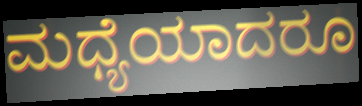
ಮಧ್ಯೆಯಾದರೂ